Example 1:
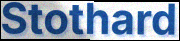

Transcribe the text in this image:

Stothard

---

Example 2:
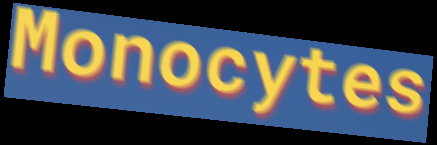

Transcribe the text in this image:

Monocytes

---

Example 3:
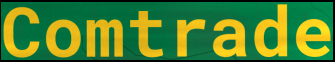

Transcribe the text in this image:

Comtrade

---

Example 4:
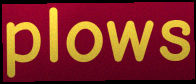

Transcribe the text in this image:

plows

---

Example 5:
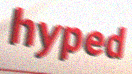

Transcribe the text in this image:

hyped